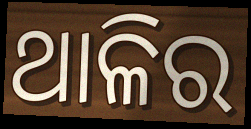
ଥାଳିର